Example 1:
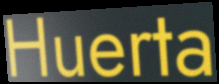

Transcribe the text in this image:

Huerta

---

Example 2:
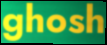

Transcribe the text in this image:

ghosh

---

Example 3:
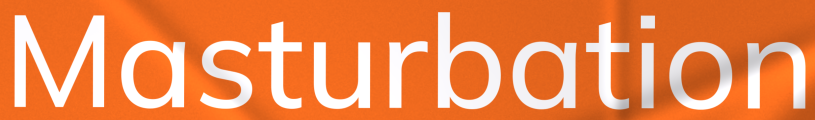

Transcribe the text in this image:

Masturbation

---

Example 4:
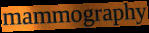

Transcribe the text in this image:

mammography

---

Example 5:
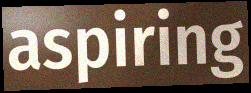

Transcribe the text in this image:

aspiring